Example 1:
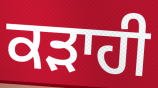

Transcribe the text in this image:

ਕੜਾਹੀ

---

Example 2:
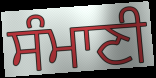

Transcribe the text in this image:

ਸੰਮਾਣੀ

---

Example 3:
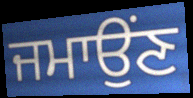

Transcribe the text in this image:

ਜਮਾਉਂਣ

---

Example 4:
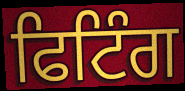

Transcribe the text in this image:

ਫਿਟਿੰਗ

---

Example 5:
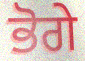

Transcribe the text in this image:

ਭੋਗੇ